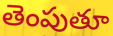
తెంపుతూ